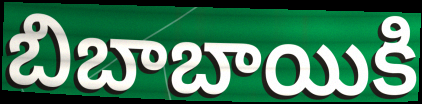
బిబాబాయికి